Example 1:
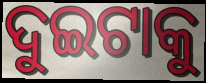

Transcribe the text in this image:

ଦୁଇଟାକୁ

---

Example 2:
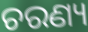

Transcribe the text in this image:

ଚରଣ୍ୟ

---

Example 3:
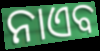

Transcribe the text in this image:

ନାଏବ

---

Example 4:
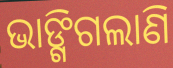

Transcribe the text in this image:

ଭାଙ୍ଗିଗଲାଣି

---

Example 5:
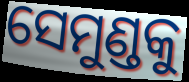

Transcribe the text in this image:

ସେମୁଣ୍ଡକୁ